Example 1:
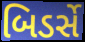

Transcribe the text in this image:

બિડર્સે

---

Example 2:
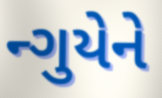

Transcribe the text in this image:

ન્ગુયેને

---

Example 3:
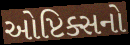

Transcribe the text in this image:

ઓપ્ટિક્સનો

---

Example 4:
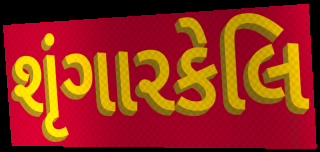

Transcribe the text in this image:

શૃંગારકેલિ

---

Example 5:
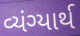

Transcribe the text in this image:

વ્યંગ્યાર્થ